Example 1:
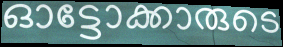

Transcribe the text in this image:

ഓട്ടോക്കാരുടെ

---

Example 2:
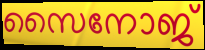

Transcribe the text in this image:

സൈനോജ്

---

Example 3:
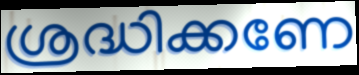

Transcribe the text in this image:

ശ്രദ്ധിക്കണേ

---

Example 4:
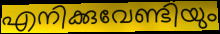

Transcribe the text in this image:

എനിക്കുവേണ്ടിയും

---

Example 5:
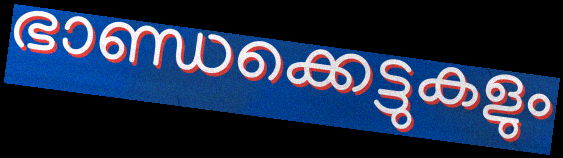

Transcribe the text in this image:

ഭാണ്ഡക്കെട്ടുകളും